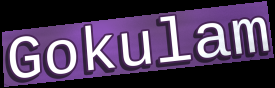
Gokulam